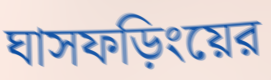
ঘাসফড়িংয়ের